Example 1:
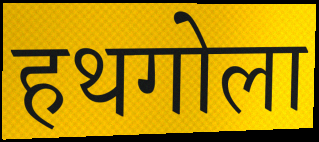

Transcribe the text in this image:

हथगोला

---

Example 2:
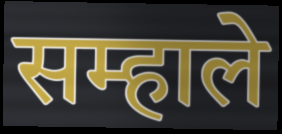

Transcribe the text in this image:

सम्हाले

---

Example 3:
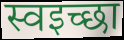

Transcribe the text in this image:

स्वइच्छा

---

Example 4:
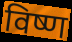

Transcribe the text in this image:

विष्ण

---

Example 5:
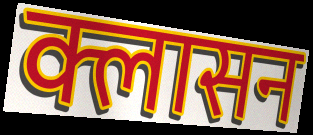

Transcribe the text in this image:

क्लासन